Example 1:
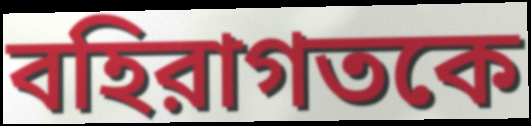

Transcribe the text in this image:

বহিরাগতকে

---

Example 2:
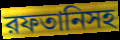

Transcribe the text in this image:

রফতানিসহ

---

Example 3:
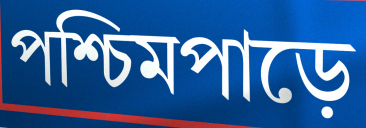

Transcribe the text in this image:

পশ্চিমপাড়ে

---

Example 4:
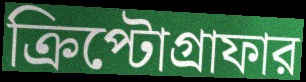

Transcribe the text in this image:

ক্রিপ্টোগ্রাফার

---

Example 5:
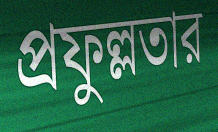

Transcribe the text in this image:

প্রফুল্লতার